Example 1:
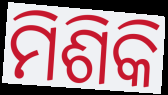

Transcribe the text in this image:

ମିଶିକି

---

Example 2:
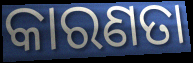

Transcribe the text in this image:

କାରଣତା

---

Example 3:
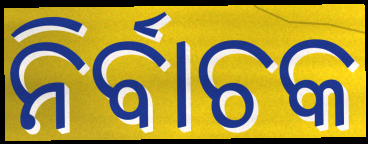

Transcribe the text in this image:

ନିର୍ବାଚକ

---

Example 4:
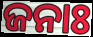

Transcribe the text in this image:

ଜନାଃ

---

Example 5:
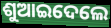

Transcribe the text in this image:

ଶୁଆଇଦେଲେ